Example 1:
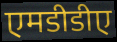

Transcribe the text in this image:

एमडीडीए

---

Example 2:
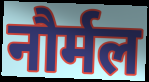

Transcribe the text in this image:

नौर्मल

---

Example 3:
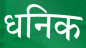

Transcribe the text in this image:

धनिक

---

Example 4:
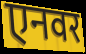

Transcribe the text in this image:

एनवर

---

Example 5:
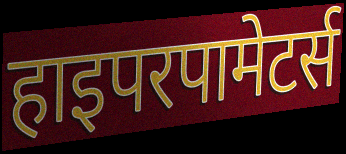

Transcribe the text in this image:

हाइपरपामेटर्स